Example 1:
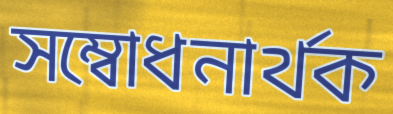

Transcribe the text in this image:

সম্বোধনাৰ্থক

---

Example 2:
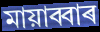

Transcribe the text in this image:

মায়াব্বাৰ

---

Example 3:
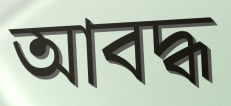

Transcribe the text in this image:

আবদ্ধ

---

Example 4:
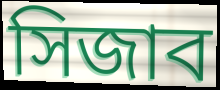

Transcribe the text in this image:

সিজাব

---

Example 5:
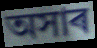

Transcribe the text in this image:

অসাৰ